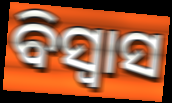
ବିସ୍ବାସ